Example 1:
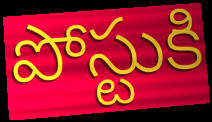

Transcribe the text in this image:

పోస్టుకి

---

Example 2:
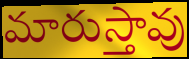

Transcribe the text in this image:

మారుస్తావు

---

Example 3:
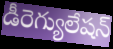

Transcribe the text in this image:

డీరెగ్యులేషన్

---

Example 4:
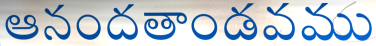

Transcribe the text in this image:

ఆనందతాండవము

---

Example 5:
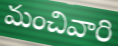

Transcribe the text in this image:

మంచివారి